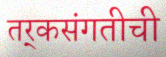
तर्कसंगतीची